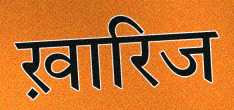
ख़ारिज